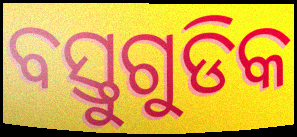
ବସ୍ତୁଗୁଡିକ